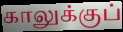
காலுக்குப்